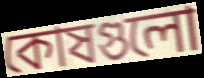
কোষগুলো